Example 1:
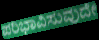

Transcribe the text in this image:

ಪರಿಭಾವಿಸುವುದೇ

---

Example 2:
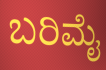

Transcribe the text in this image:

ಬರಿಮೈ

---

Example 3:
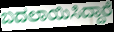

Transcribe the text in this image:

ಬದಲಾಯಿಸಿದ್ದಾರೆ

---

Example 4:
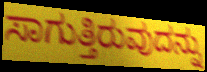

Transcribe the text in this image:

ಸಾಗುತ್ತಿರುವುದನ್ನು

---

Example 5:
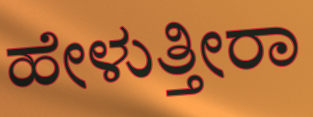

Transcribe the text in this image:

ಹೇಳುತ್ತೀರಾ